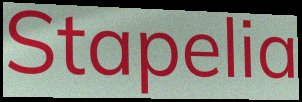
Stapelia